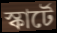
স্কার্টে